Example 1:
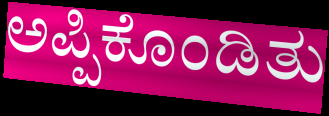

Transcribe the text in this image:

ಅಪ್ಪಿಕೊಂಡಿತು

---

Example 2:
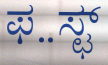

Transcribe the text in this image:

ಫ಼ಸ್ಟ್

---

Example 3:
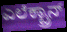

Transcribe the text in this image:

ಎಲೆಕ್ಟ್ರಾನ್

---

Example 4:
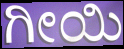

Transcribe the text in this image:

ಗೀಯಿ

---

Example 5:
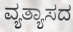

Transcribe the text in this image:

ವ್ಯತ್ಯಾಸದ